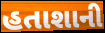
હતાશાની